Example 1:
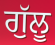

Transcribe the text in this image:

ਗੁੱਲੂ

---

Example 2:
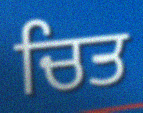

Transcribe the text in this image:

ਚਿਤ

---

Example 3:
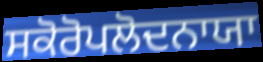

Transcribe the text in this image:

ਸਕੋਰੋਪਲੋਦਨਾਯਾ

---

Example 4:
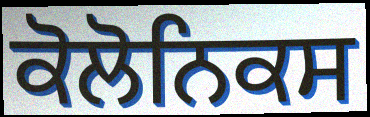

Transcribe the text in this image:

ਕੋਲੋਨਿਕਸ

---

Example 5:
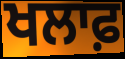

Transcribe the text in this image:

ਖਲਾਫ਼